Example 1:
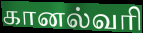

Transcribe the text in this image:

கானல்வரி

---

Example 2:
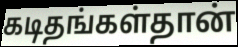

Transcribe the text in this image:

கடிதங்கள்தான்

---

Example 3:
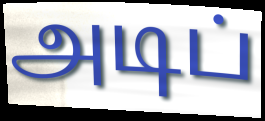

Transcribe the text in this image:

அடிப்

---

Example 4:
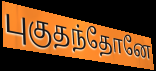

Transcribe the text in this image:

புகுதந்தோனே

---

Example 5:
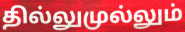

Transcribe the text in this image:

தில்லுமுல்லும்